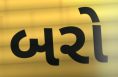
બરો